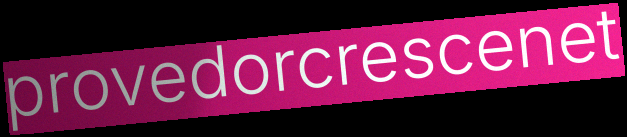
provedorcrescenet